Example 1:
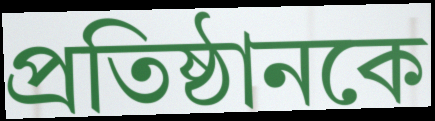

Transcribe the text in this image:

প্রতিষ্ঠানকে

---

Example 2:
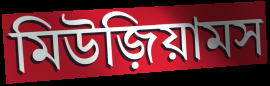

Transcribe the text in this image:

মিউজ়িয়ামস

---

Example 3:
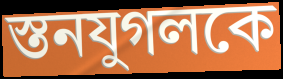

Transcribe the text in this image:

স্তনযুগলকে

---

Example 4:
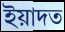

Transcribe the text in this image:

ইয়াদত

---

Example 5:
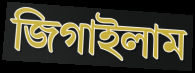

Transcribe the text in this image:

জিগাইলাম